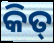
କିତ୍